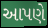
આપણે